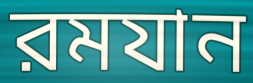
রমযান